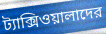
ট্যাক্সিওয়ালাদের